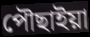
পৌছাইয়া